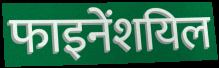
फाइनेंशयिल